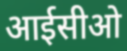
आईसीओ